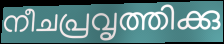
നീചപ്രവൃത്തിക്കു